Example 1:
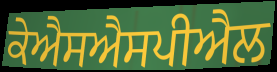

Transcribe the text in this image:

ਕੇਐਸਐਸਪੀਐਲ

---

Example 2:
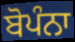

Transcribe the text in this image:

ਬੋਪੰਨਾ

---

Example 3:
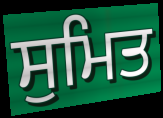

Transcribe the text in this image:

ਸੁਮਿਤ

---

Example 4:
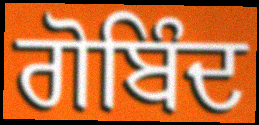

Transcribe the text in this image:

ਗੋਬਿੰਦ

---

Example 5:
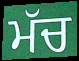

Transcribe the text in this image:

ਮੱਚ